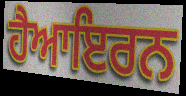
ਹੈਆਇਰਨ